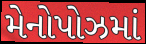
મેનોપોઝમાં